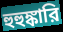
হুহুঙ্কারি